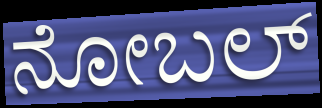
ನೋಬಲ್